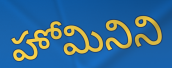
హోమినిని